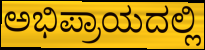
ಅಭಿಪ್ರಾಯದಲ್ಲಿ